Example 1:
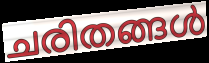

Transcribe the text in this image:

ചരിതങ്ങൾ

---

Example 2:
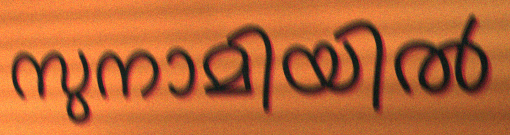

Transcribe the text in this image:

സുനാമിയിൽ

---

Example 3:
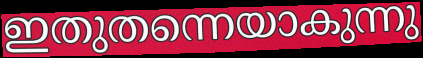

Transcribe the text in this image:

ഇതുതന്നെയാകുന്നു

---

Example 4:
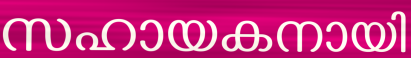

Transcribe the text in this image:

സഹായകനായി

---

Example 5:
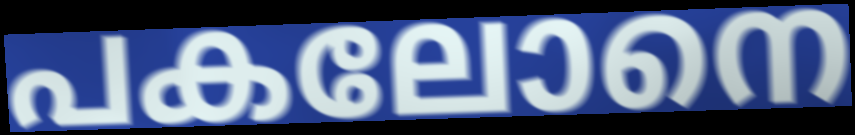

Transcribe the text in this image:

പകലോനെ